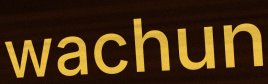
wachun